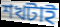
শখটাই